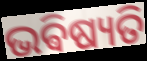
ଭଵିଷ୍ୟତି